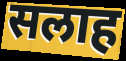
सलाह